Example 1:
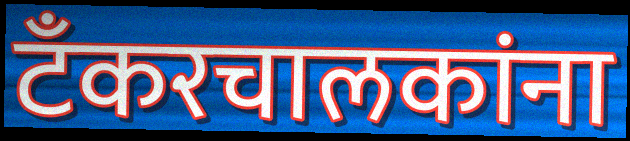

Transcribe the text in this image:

टँकरचालकांना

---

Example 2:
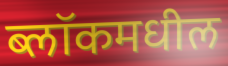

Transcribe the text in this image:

ब्लॉकमधील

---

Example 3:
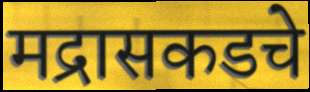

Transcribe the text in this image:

मद्रासकडचे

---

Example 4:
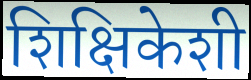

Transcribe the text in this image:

शिक्षिकेशी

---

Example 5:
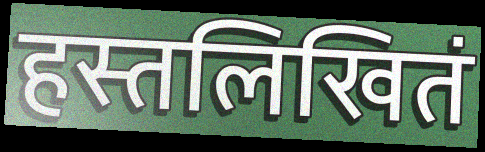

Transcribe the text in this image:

हस्तलिखितं